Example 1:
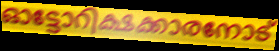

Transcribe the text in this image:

ഓട്ടോറിക്ഷക്കാരനോട്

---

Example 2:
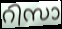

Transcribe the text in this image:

റിസാ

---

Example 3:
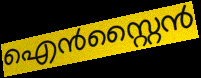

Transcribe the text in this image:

ഐൻസ്റ്റൈൻ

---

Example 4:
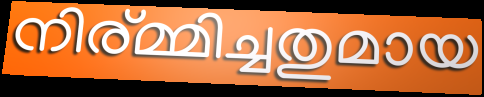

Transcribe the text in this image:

നിര്മ്മിച്ചതുമായ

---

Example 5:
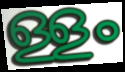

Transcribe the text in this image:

ള്ളം